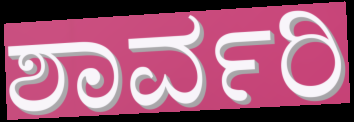
ಶಾರ್ವರಿ